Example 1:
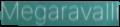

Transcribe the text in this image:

Megaravalli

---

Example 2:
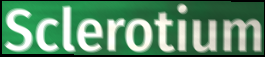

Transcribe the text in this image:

Sclerotium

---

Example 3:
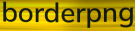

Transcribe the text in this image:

borderpng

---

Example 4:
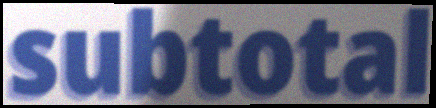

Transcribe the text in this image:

subtotal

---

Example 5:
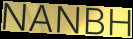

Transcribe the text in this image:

NANBH